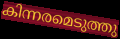
കിന്നരമെടുത്തു